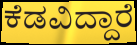
ಕೆಡವಿದ್ದಾರೆ